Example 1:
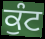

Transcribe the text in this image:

ਕੁੰਟ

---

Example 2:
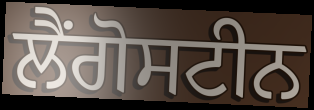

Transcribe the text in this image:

ਲੈਂਗੋਸਟੀਨ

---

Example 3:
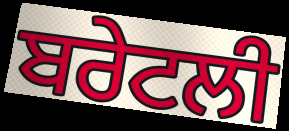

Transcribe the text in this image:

ਬਰੇਟਲੀ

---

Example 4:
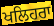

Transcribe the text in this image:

ਖਲਿਹਰਾ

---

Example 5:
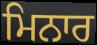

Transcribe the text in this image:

ਮਿਨਾਰ